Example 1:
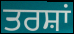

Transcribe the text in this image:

ਤਰਸ਼ਾਂ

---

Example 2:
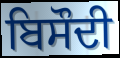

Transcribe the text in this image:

ਬਿਸੌਦੀ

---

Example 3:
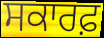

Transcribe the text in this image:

ਸਕਾਰਫ਼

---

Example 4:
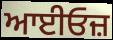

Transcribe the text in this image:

ਆਈਓਜ਼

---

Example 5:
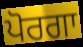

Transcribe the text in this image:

ਪੋਰਗਾ